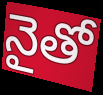
నైతో